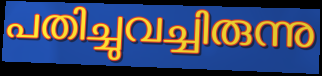
പതിച്ചുവച്ചിരുന്നു